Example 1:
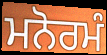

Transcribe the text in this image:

ਮਨੋਰਮੰ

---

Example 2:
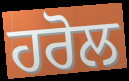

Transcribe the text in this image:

ਹਰੋਲ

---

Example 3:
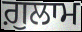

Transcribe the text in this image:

ਗ਼ੁਲਾਮ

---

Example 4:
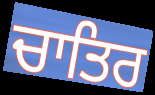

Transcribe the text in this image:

ਚਾਤਿਰ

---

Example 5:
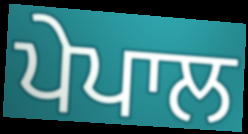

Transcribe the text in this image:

ਪੇਪਾਲ